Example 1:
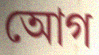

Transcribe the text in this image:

আেগ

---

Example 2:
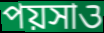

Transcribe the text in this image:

পয়সাও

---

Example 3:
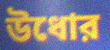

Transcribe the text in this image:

উধোর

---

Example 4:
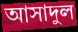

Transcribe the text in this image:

আসাদুল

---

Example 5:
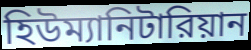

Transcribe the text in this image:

হিউম্যানিটারিয়ান